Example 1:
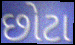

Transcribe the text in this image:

છોટા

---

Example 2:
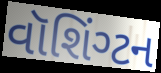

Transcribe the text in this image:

વૉશિંગ્ટન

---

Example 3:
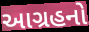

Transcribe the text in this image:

આગ્રહનો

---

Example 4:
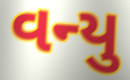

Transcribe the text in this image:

વન્યુ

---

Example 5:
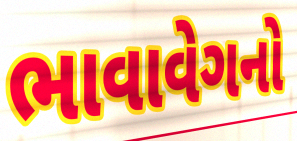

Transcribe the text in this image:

ભાવાવેગનો